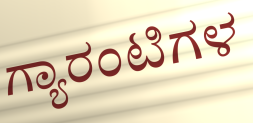
ಗ್ಯಾರಂಟಿಗಳ